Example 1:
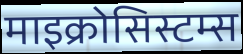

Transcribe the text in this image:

माइक्रोसिस्टम्स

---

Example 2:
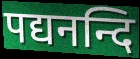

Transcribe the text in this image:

पद्यनन्दि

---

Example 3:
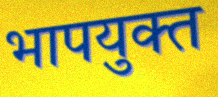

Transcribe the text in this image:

भापयुक्त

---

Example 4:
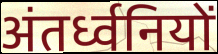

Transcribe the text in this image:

अंतर्ध्वनियों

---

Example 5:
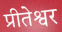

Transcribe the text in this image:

प्रीतेश्वर